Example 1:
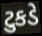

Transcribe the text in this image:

ટુકડે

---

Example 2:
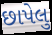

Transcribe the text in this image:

છાપેલુ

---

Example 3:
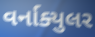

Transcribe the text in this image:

વર્નાક્યુલર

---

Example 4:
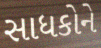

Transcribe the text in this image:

સાધકોને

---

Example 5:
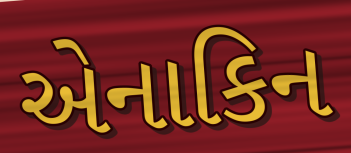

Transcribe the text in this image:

એનાકિન